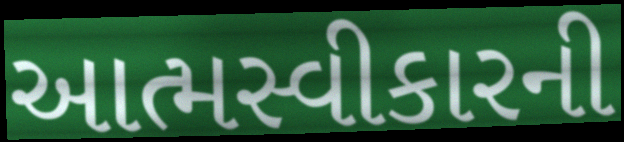
આત્મસ્વીકારની